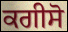
ਕਗੀਸੋ